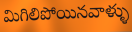
మిగిలిపోయినవాళ్ళు